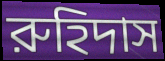
রুহিদাস